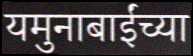
यमुनाबाईंच्या